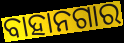
ବାହାନଗାର